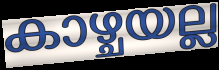
കാഴ്ചയല്ല